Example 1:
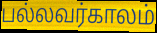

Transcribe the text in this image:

பல்லவர்காலம்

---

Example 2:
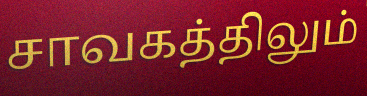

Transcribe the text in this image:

சாவகத்திலும்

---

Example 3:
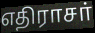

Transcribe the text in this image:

எதிராசர்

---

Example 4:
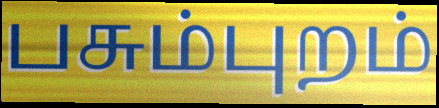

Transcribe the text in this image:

பசும்புறம்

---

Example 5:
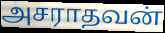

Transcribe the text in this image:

அசராதவன்